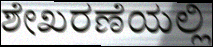
ಶೇಖರಣೆಯಲ್ಲಿ